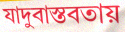
যাদুবাস্তবতায়